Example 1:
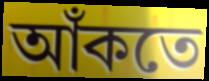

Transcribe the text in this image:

আঁকতে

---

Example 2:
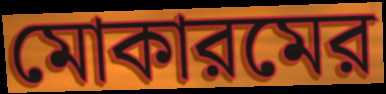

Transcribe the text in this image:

মোকারমের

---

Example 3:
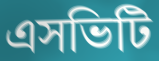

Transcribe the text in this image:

এসভিটি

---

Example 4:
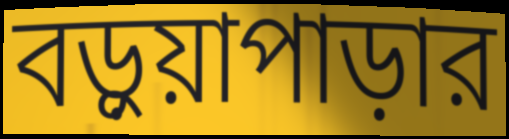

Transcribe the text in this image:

বড়ুয়াপাড়ার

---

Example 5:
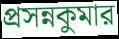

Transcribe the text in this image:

প্রসন্নকুমার